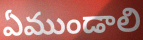
ఏముండాలి